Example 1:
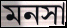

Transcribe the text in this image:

মনসা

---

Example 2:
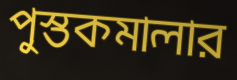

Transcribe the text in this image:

পুস্তকমালার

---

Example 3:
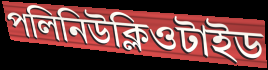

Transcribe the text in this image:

পলিনিউক্লিওটাইড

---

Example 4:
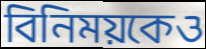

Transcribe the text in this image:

বিনিময়কেও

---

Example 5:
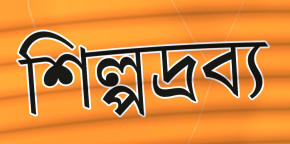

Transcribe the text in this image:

শিল্পদ্রব্য